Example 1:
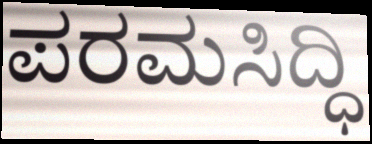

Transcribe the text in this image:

ಪರಮಸಿದ್ಧಿ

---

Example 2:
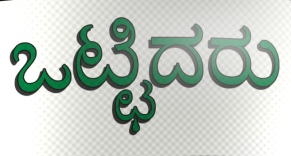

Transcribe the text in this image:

ಒಟ್ಟಿದರು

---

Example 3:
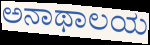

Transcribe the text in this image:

ಅನಾಥಾಲಯ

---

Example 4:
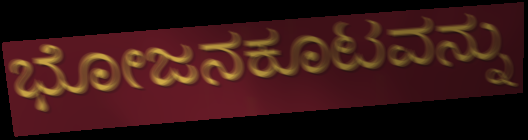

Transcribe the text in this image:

ಭೋಜನಕೂಟವನ್ನು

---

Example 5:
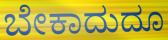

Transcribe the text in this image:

ಬೇಕಾದುದೂ